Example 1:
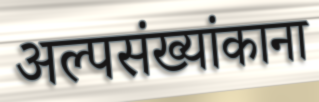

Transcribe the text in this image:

अल्पसंख्यांकाना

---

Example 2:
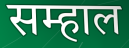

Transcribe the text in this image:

सम्हाल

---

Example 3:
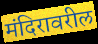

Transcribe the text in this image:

मंदिरावरील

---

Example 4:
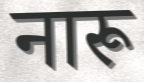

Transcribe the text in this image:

नारू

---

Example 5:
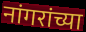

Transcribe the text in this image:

नांगरांच्या